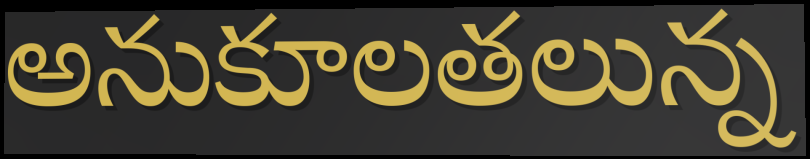
అనుకూలతలున్న